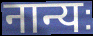
नान्यः